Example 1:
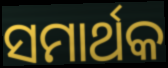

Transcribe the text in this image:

ସମାର୍ଥକ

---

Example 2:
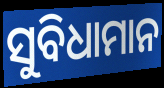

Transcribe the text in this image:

ସୁବିଧାମାନ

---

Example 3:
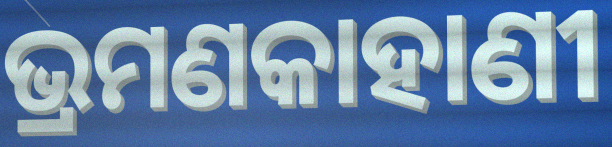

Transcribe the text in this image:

ଭ୍ରମଣକାହାଣୀ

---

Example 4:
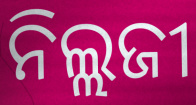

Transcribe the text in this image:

ନିଲ୍ଲଜୀ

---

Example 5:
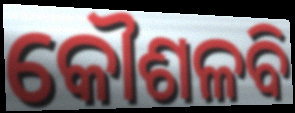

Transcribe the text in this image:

କୌଶଳବି